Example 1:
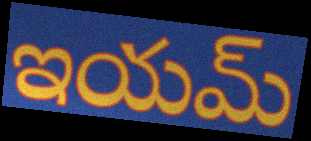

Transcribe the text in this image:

ఇయమ్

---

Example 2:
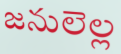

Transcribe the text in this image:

జనులెల్ల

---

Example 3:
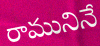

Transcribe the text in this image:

రామునినే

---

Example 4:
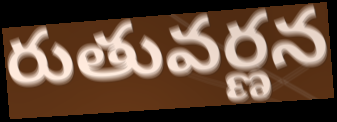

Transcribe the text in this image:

రుతువర్ణన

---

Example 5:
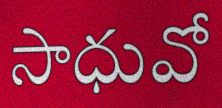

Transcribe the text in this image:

సాధువో